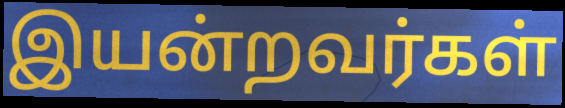
இயன்றவர்கள்